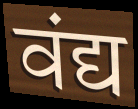
वंद्य